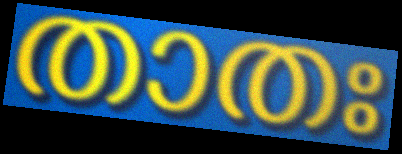
താതഃ